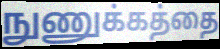
நுணுக்கத்தை